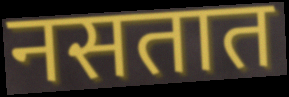
नसतात